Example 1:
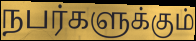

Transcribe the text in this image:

நபர்களுக்கும்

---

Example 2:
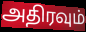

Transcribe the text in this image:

அதிரவும்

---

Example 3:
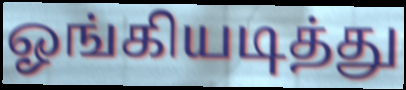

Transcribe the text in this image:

ஓங்கியடித்து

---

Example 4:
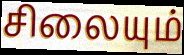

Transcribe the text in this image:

சிலையும்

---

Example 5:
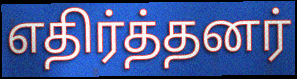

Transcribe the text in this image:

எதிர்த்தனர்